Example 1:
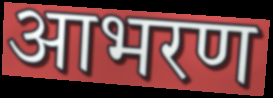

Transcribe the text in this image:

आभरण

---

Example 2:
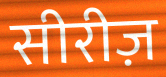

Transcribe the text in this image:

सीरीज़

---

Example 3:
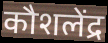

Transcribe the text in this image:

कौशलेंद्र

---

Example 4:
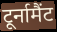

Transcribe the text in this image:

टूर्नामैंट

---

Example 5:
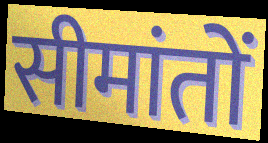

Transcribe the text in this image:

सीमांतों